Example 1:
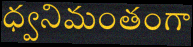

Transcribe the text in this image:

ధ్వనిమంతంగా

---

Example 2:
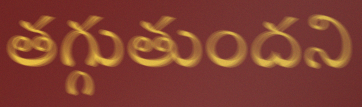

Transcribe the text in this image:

తగ్గుతుందని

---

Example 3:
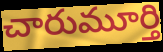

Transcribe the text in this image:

చారుమూర్తి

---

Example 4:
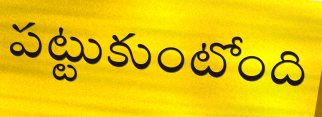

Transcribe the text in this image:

పట్టుకుంటోంది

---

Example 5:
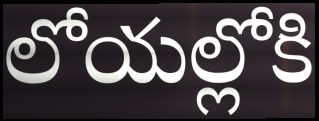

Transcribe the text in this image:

లోయల్లోకి